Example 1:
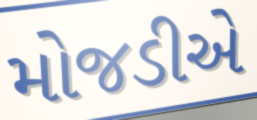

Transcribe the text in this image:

મોજડીએ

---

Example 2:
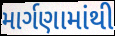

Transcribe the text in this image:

માર્ગણામાંથી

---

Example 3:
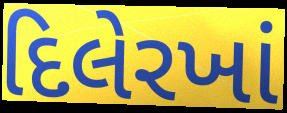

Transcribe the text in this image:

દિલેરખાં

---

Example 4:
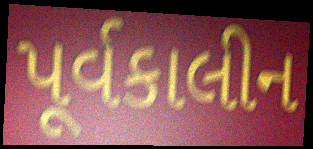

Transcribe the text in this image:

પૂર્વકાલીન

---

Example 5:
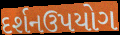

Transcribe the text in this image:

દર્શનઉપયોગ